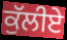
ਕੁੱਲੀਏ